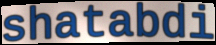
shatabdi